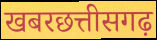
खबरछत्तीसगढ़